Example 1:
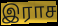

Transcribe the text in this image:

இராச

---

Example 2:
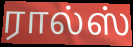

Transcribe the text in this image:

ரால்ஸ்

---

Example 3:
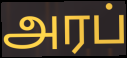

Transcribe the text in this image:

அரப்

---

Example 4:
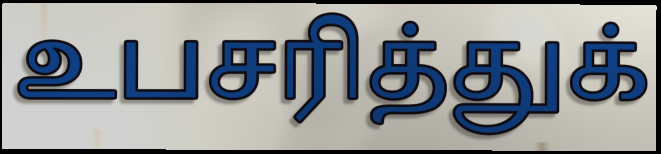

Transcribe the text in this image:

உபசரித்துக்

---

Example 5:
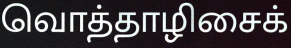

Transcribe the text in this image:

வொத்தாழிசைக்